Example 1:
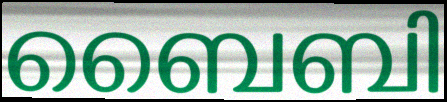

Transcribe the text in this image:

ബൈബി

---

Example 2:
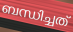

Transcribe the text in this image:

ബന്ധിച്ചത്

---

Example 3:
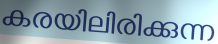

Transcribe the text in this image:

കരയിലിരിക്കുന്ന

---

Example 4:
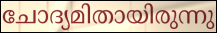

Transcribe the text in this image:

ചോദ്യമിതായിരുന്നു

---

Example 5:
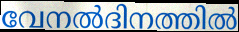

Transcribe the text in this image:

വേനൽദിനത്തിൽ